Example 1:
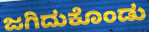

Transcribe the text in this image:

ಜಗಿದುಕೊಂಡು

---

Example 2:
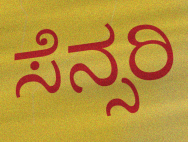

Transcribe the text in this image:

ಸೆನ್ಸರಿ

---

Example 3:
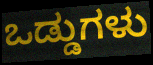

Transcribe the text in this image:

ಒಡ್ಡುಗಳು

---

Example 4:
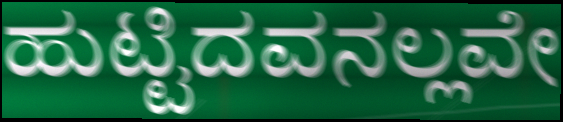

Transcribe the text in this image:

ಹುಟ್ಟಿದವನಲ್ಲವೇ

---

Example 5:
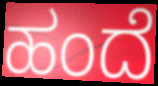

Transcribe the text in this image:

ಹಂದೆ